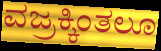
ವಜ್ರಕ್ಕಿಂತಲೂ